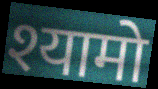
श्यामो